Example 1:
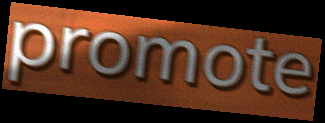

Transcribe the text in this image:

promote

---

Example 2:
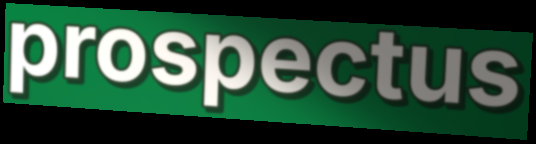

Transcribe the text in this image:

prospectus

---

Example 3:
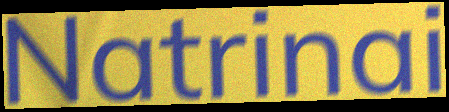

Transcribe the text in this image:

Natrinai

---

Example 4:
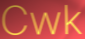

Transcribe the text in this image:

Cwk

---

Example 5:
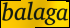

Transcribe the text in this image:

balaga